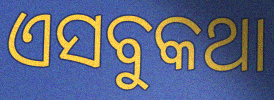
ଏସବୁକଥା